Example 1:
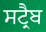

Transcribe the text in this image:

ਸਟ੍ਰੈਬ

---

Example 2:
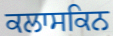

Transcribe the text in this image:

ਕਲਾਸਕਿਨ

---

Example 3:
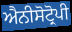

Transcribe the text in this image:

ਐਨੀਸੋਟ੍ਰੋਪੀ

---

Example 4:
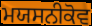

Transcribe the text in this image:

ਮਯਸਨੀਕੋਵ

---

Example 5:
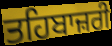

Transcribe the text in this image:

ਤਹਿਬਾਜ਼ਰੀ